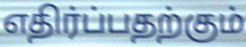
எதிர்ப்பதற்கும்